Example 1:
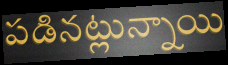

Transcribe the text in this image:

పడినట్లున్నాయి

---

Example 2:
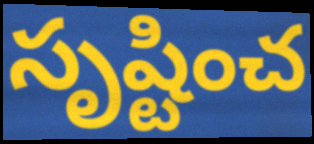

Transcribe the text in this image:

సృష్టించ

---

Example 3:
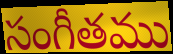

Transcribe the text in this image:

సంగీతము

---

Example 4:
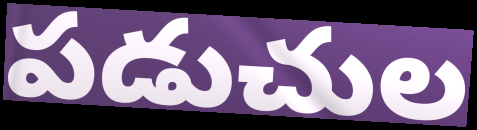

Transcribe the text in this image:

పడుచుల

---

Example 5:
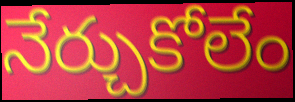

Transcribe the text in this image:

నేర్చుకోలేం